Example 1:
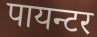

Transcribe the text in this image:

पायन्टर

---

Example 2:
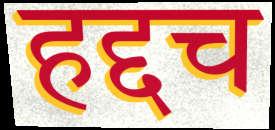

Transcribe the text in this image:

हद्दच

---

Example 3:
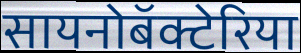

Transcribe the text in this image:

सायनोबॅक्टेरिया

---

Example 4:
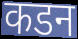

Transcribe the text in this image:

कडन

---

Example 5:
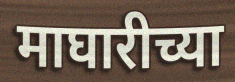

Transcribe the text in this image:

माघारीच्या